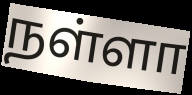
நள்ளா